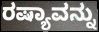
ರಷ್ಯಾವನ್ನು